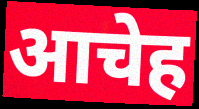
आचेह